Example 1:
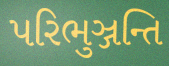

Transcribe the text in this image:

પરિભુઞ્જન્તિ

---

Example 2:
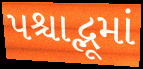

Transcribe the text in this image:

પશ્ચાદ્ભૂમાં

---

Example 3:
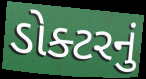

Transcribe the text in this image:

ડોક્ટરનું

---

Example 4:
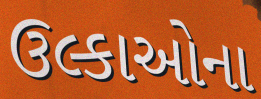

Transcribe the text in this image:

ઉલ્કાઓના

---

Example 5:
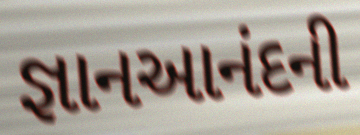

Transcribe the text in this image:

જ્ઞાનઆનંદની